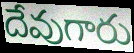
దేవుగారు